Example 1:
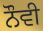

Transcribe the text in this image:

ਨੌਵੀ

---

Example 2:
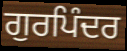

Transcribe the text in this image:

ਗੁਰਪਿੰਦਰ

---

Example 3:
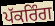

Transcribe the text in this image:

ਪੱਕਰਿੰਗ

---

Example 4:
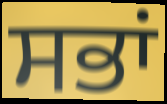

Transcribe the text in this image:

ਸਭਾਂ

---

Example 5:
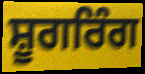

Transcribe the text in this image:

ਸ਼ੂਗਰਿੰਗ